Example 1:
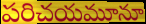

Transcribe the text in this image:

పరిచయమూనూ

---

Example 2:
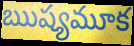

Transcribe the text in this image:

ఋష్యమూక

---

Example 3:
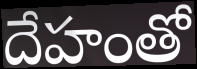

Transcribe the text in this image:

దేహంతో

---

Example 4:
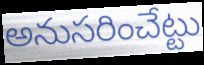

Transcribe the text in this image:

అనుసరించేట్టు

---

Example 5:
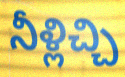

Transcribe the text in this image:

నీళ్లిచ్చి